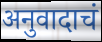
अनुवादाचं